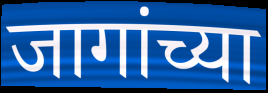
जागांच्या